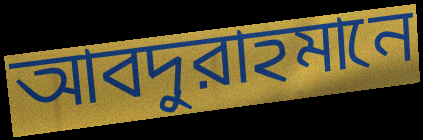
আবদুরাহমানে